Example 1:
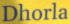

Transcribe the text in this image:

Dhorla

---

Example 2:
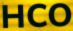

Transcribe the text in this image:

HCO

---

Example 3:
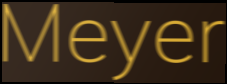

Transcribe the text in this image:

Meyer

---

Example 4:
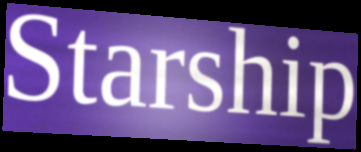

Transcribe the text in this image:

Starship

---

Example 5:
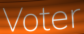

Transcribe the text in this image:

Voter